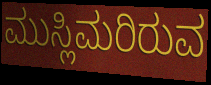
ಮುಸ್ಲಿಮರಿರುವ